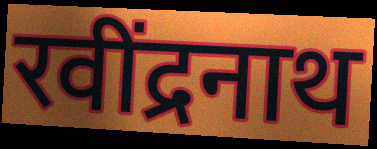
रवींद्रनाथ